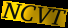
NCVT